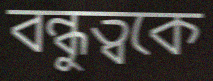
বন্ধুত্বকে